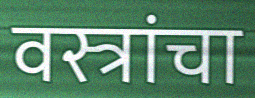
वस्त्रांचा